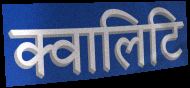
क्वालिटि